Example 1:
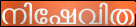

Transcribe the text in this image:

നിഷേവിത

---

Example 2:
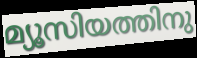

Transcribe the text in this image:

മ്യൂസിയത്തിനു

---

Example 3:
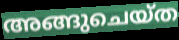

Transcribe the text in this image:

അങ്ങുചെയ്ത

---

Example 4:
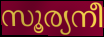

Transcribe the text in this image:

സൂര്യനീ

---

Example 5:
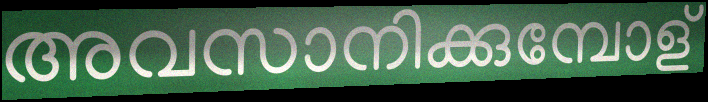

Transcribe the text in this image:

അവസാനിക്കുമ്പോള്